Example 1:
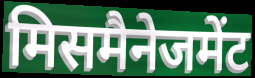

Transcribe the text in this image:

मिसमैनेजमेंट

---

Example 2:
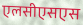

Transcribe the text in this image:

एलसीएसएस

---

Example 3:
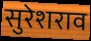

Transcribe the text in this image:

सुरेशराव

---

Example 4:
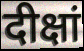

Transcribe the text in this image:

दीक्षां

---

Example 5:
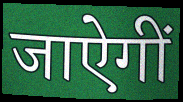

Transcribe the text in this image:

जाऐगीं